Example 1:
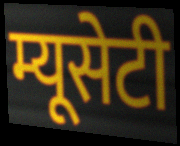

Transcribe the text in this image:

म्यूसेटी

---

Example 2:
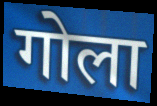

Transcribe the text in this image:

गोला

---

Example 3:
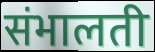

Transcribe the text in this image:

संभालती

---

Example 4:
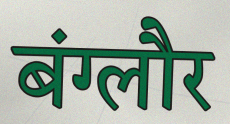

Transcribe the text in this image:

बंग्लौर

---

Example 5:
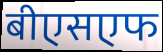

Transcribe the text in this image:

बीएसएफ